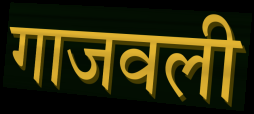
गाजवली